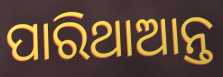
ପାରିଥାଆନ୍ତ